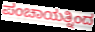
ಪಂಚಾಯತ್ನಿಂದ